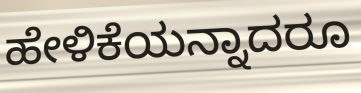
ಹೇಳಿಕೆಯನ್ನಾದರೂ